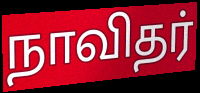
நாவிதர்